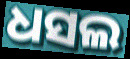
ଧସଲ